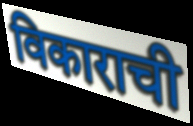
विकाराची